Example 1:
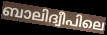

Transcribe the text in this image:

ബാലിദ്വീപിലെ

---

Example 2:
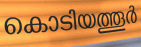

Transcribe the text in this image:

കൊടിയത്തൂർ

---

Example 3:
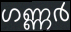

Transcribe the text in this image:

ഗണ്ണർ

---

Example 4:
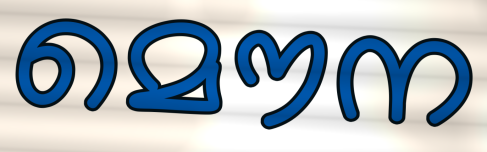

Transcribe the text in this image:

മൌന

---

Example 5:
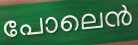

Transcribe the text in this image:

പോലെൻ